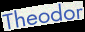
Theodor